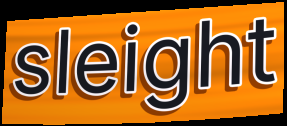
sleight